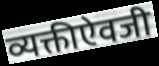
व्यक्तीऐवजी